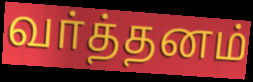
வர்த்தனம்